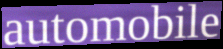
automobile